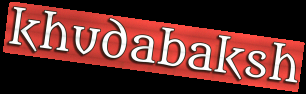
khudabaksh